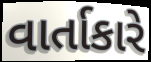
વાર્તાકારે